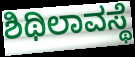
ಶಿಥಿಲಾವಸ್ಥೆ